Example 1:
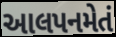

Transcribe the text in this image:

આલપનમેતં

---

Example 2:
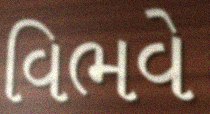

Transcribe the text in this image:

વિભવે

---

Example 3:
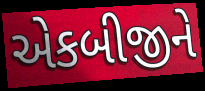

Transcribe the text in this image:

એકબીજીને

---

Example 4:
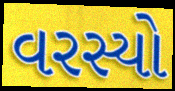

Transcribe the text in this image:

વરસ્યો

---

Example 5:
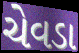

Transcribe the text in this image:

ચેવડા